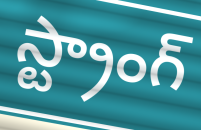
స్ట్రాంగ్